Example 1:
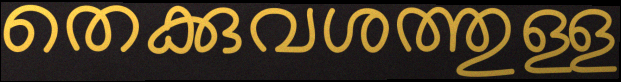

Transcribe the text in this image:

തെക്കുവശത്തുള്ള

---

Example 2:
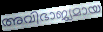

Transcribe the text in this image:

അവിഭാജ്യമായ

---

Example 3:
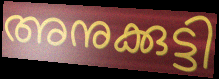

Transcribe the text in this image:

അനുക്കുട്ടി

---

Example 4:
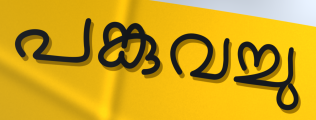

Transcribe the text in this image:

പങ്കുവച്ചു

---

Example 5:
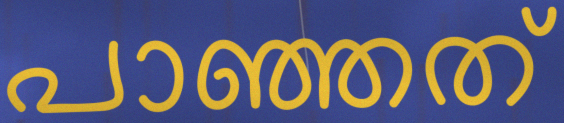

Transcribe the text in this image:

പാഞ്ഞത്